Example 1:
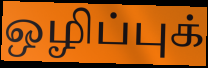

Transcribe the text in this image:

ஒழிப்புக்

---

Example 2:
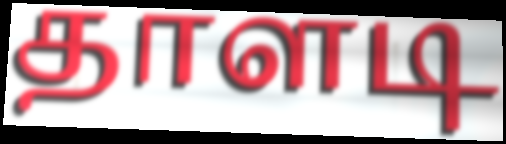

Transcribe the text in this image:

தாளடி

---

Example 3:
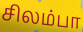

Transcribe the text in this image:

சிலம்பா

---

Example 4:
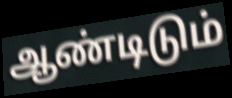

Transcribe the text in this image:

ஆண்டிடும்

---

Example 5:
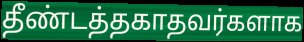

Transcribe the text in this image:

தீண்டத்தகாதவர்களாக